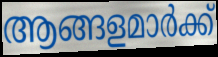
ആങ്ങളമാർക്ക്